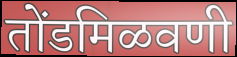
तोंडमिळवणी